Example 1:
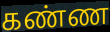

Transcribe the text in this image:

கண்ண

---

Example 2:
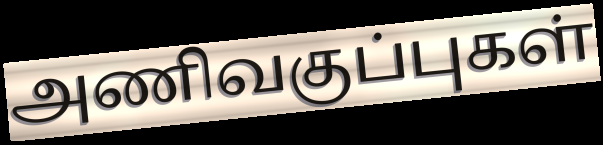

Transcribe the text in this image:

அணிவகுப்புகள்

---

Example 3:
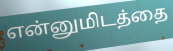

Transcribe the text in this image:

என்னுமிடத்தை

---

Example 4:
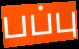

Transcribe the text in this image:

பப்பு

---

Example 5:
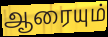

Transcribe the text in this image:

ஆரையும்